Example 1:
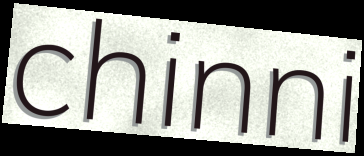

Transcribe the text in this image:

chinni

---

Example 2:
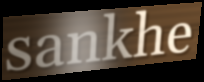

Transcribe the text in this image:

sankhe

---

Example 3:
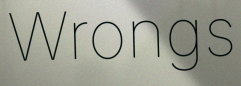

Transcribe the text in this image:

Wrongs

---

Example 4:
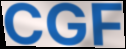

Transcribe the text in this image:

CGF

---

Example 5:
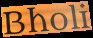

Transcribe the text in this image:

Bholi